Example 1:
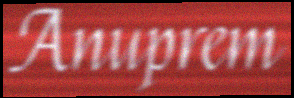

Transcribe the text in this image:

Anuprem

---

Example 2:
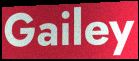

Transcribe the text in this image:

Gailey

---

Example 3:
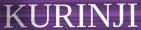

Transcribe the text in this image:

KURINJI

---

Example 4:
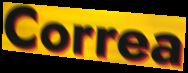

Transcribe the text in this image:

Correa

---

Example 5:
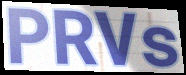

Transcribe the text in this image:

PRVs